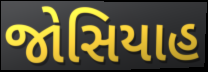
જોસિયાહ